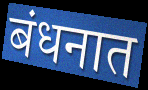
बंधनात